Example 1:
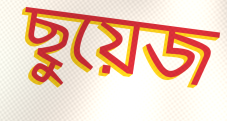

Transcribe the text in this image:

ছুয়েজ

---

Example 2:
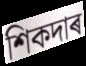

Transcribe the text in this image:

শিকদাৰ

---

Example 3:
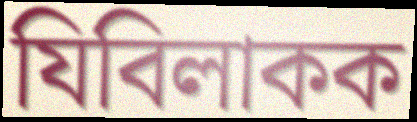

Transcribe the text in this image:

যিবিলাকক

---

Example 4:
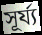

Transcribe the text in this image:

সূৰ্য্য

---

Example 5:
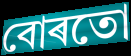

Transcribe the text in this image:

বোৰতো